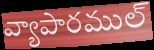
వ్యాపారముల్